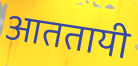
आततायी